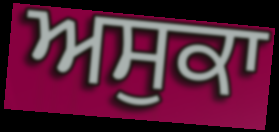
ਅਸੁਕਾ